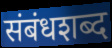
संबंधशब्द